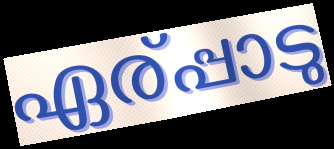
ഏര്പ്പാടു